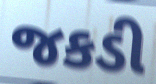
જકડી